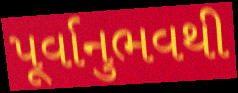
પૂર્વાનુભવથી